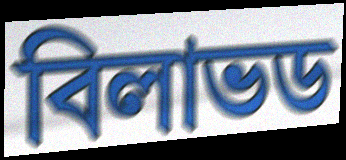
বিলাভড